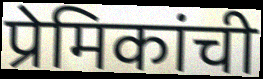
प्रेमिकांची